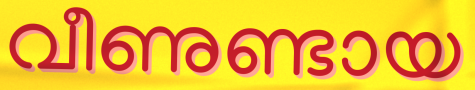
വീണുണ്ടായ